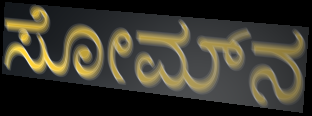
ಸೋಮ್‍ನ